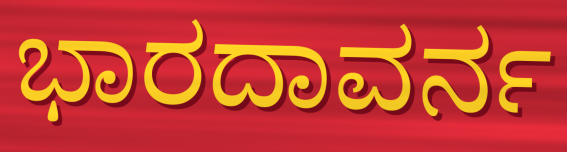
ಭಾರದಾವರ್ನ